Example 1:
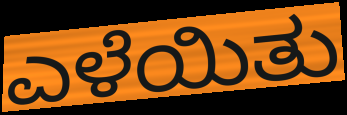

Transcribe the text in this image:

ಎಳೆಯಿತು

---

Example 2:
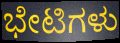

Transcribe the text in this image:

ಭೇಟಿಗಳು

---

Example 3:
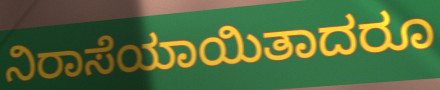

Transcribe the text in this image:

ನಿರಾಸೆಯಾಯಿತಾದರೂ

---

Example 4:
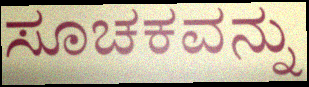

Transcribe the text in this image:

ಸೂಚಕವನ್ನು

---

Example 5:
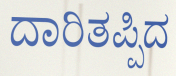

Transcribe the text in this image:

ದಾರಿತಪ್ಪಿದ